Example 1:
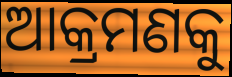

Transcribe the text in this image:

ଆକ୍ରମଣକୁ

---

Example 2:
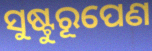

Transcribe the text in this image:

ସୁଷ୍ଟୁରୂପେଣ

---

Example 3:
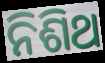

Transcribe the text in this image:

ନିଶିଥ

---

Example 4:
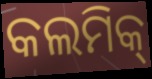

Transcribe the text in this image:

କଲମିକ୍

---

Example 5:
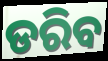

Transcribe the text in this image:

ଡରିବ